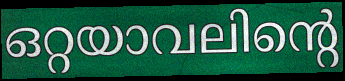
ഒറ്റയാവലിന്റെ